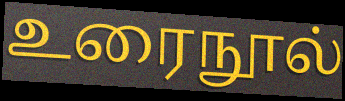
உரைநூல்